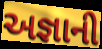
અજ્ઞાની